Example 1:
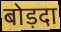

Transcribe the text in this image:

बोड़दा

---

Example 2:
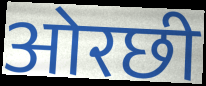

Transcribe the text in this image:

ओरछी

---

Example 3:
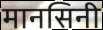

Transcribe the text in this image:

मानसिनी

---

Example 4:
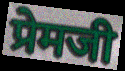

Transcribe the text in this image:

प्रेमजी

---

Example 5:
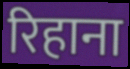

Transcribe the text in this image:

रिहाना